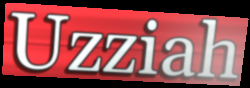
Uzziah